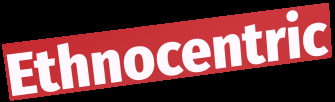
Ethnocentric